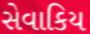
સેવાકિય